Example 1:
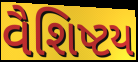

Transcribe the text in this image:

વૈશિષ્ટય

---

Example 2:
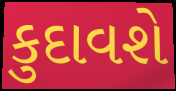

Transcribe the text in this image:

કુદાવશે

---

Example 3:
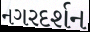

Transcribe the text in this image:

નગરદર્શન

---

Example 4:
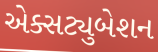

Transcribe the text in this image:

એક્સટ્યુબેશન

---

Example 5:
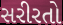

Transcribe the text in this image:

સરીરતો